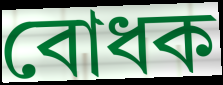
বোধক